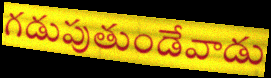
గడుపుతుండేవాడు